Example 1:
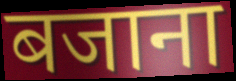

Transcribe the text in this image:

बजाना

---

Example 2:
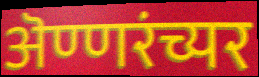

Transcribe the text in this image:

ऄण्णरंच्यर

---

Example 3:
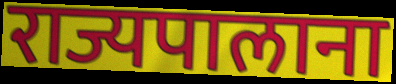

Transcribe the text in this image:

राज्यपालाना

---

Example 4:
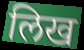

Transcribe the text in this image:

लिख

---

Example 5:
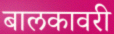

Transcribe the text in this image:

बालकावरी